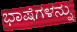
ಭಾಷೆಗಳನ್ನು